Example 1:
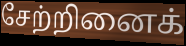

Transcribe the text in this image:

சேற்றினைக்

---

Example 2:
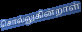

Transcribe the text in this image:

சொல்லுகின்றாள்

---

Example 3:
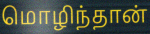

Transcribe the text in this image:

மொழிந்தான்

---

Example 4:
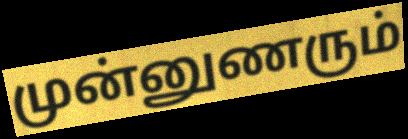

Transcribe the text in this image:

முன்னுணரும்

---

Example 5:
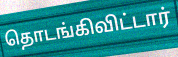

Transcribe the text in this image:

தொடங்கிவிட்டார்